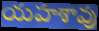
యహశావు